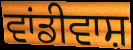
ਵਾਂਡੀਵਾਸ਼